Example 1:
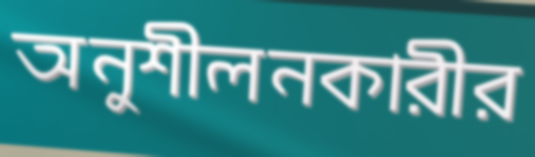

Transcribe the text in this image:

অনুশীলনকারীর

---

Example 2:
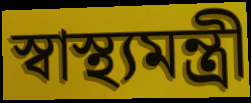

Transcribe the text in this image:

স্বাস্থ্যমন্ত্রী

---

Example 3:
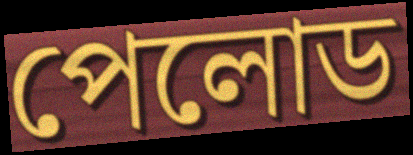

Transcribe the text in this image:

পেলোড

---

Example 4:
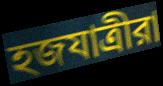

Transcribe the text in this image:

হজযাত্রীরা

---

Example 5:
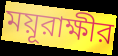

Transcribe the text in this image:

ময়ূরাক্ষীর